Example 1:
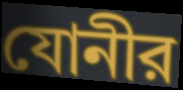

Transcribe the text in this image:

যোনীর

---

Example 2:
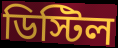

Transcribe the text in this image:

ডিস্টিল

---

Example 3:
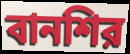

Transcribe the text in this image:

বানশির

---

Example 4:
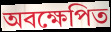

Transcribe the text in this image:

অবক্ষেপিত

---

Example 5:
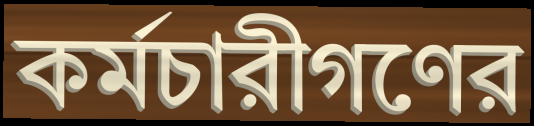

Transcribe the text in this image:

কর্মচারীগণের